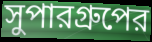
সুপারগ্রুপের